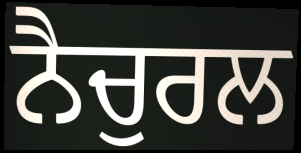
ਨੈਚੁਰਲ